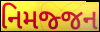
નિમજ્જન